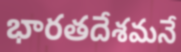
భారతదేశమనే